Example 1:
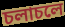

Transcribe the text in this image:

চলাচলে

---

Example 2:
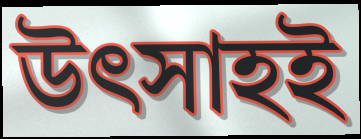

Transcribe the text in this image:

উৎসাহই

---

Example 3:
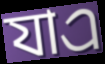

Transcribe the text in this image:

যাএ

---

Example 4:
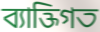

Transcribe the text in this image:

ব্যাক্তিগত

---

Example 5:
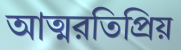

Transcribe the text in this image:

আত্মরতিপ্রিয়